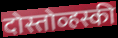
दोस्तोव्हस्की